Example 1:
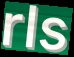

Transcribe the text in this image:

rls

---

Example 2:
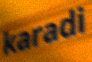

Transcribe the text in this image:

karadi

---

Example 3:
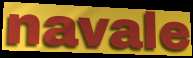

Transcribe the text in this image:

navale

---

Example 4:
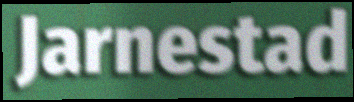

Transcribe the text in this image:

Jarnestad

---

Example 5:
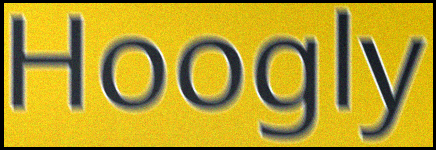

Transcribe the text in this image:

Hoogly